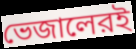
ভেজালেরই